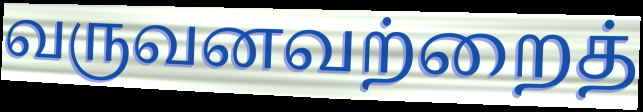
வருவனவற்றைத்